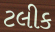
ટલીક